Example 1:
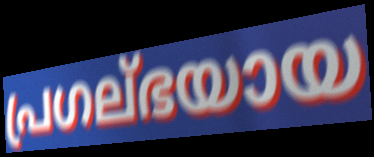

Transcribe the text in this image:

പ്രഗല്ഭയായ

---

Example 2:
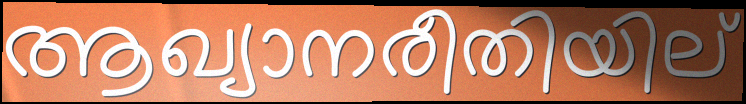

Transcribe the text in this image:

ആഖ്യാനരീതിയില്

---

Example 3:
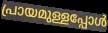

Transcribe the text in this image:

പ്രായമുള്ളപ്പോൾ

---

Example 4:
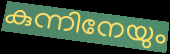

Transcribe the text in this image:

കുന്നിനേയും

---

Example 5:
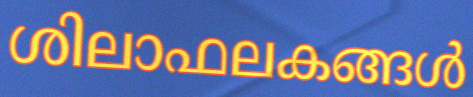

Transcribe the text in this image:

ശിലാഫലകങ്ങൾ